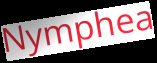
Nymphea